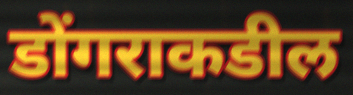
डोंगराकडील